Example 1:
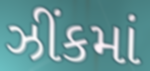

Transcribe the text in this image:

ઝીંકમાં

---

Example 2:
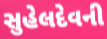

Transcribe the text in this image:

સુહેલદેવની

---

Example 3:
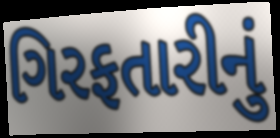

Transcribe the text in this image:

ગિરફતારીનું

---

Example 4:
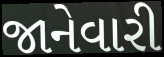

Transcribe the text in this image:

જાનેવારી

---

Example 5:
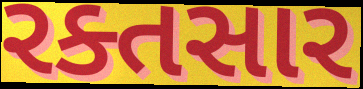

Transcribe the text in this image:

રક્તસાર